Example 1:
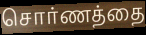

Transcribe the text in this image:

சொர்ணத்தை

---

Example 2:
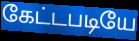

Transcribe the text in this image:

கேட்டபடியே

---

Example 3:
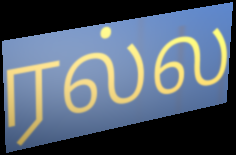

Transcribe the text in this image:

ரல்ல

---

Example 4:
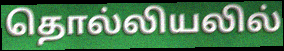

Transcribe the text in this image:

தொல்லியலில்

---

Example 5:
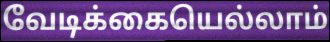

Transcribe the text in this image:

வேடிக்கையெல்லாம்